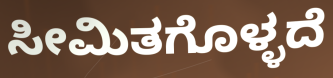
ಸೀಮಿತಗೊಳ್ಳದೆ